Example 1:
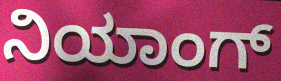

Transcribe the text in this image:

ನಿಯಾಂಗ್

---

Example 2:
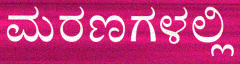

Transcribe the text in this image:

ಮರಣಗಳಲ್ಲಿ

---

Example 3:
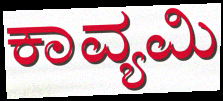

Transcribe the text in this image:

ಕಾವ್ಯಮಿ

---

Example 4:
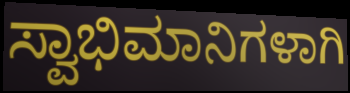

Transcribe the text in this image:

ಸ್ವಾಭಿಮಾನಿಗಳಾಗಿ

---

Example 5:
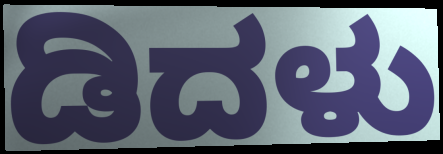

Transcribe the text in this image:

ಡಿದಳು